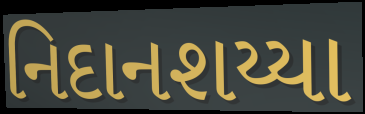
નિદાનશય્યા